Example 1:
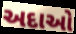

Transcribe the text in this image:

અદાઓ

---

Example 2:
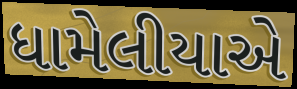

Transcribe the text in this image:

ધામેલીયાએ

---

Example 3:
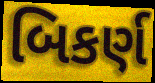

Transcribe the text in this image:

બિકર્ણ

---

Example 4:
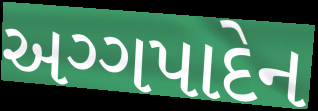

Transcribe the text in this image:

અગ્ગપાદેન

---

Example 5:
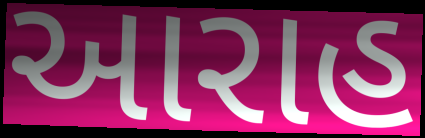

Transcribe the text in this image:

આરાહ